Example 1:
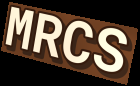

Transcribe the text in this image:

MRCS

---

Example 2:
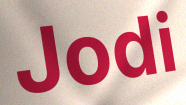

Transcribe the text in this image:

Jodi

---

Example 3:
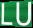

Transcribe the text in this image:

LU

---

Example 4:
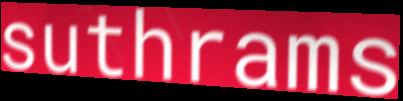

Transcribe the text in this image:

suthrams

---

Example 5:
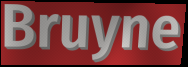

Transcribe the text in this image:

Bruyne